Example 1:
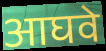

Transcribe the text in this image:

आघवे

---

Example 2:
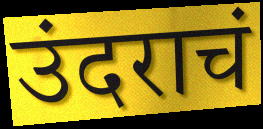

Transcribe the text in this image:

उंदराचं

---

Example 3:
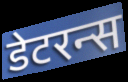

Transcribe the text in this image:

डेटरन्स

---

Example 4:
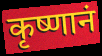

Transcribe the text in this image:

कृष्णानं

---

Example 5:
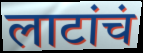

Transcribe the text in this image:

लाटांचं